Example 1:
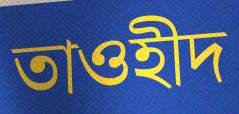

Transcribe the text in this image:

তাওহীদ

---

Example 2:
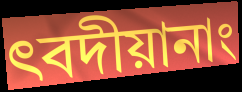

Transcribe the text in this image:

ৎবদীয়ানাং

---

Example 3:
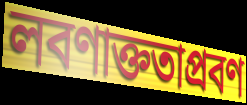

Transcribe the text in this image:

লবণাক্ততাপ্রবণ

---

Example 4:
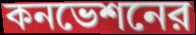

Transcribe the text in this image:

কনভেশনের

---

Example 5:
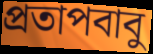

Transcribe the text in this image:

প্রতাপবাবু